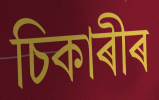
চিকাৰীৰ